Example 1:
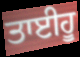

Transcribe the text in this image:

ਤਾਈਹੂ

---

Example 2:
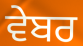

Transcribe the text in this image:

ਵੇਬਰ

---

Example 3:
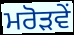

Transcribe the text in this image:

ਮਰੋੜਵੇਂ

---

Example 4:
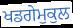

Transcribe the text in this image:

ਖਡਗੇਮੁਕੁਲ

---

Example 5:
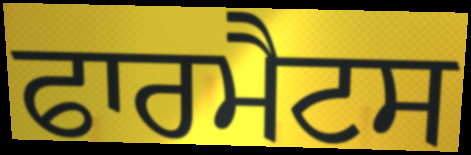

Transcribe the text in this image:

ਫਾਰਮੈਟਸ